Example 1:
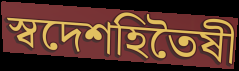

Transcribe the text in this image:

স্বদেশহিতৈষী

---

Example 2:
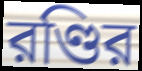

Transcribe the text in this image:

রণ্ডির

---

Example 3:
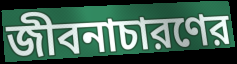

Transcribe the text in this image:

জীবনাচারণের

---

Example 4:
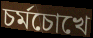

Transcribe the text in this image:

চর্মচোখে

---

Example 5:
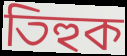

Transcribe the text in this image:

তিহুক